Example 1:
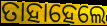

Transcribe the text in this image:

ତାହାହେଲେ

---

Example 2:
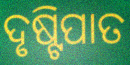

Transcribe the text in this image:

ଦୃଷ୍ଟିପାତ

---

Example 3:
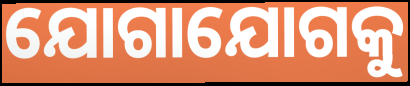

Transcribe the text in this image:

ଯୋଗାଯୋଗକୁ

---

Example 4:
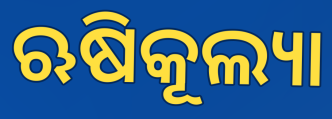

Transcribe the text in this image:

ଋଷିକୂଲ୍ୟା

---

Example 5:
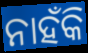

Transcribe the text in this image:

ନାହଁକି